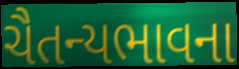
ચૈતન્યભાવના